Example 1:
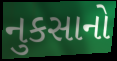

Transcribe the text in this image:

નુકસાનો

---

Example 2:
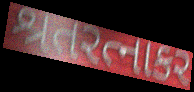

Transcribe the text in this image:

શ્રતરત્નાકર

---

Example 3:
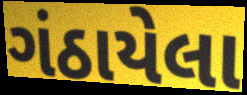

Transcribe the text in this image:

ગંઠાયેલા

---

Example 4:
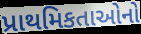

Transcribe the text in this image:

પ્રાથમિકતાઓનો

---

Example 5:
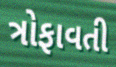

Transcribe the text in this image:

ત્રોફાવતી